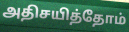
அதிசயித்தோம்